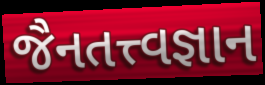
જૈનતત્ત્વજ્ઞાન